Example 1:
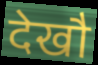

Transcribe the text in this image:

देखौ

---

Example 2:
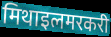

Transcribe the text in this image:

मिथाइलमरकरी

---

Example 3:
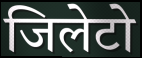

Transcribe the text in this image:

जिलेटो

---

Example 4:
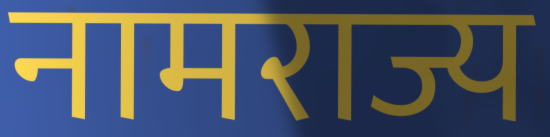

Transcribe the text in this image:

नामराज्य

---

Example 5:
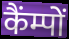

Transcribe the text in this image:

कैंम्पों